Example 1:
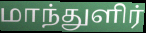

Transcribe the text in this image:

மாந்துளிர்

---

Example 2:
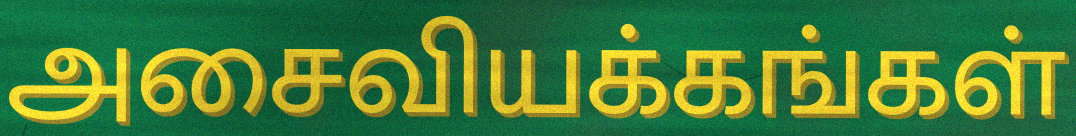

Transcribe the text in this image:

அசைவியக்கங்கள்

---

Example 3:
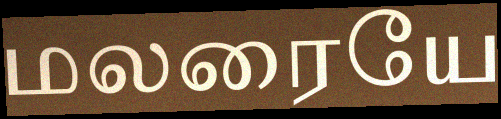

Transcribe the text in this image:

மலரையே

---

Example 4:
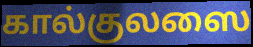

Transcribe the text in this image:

கால்குலஸை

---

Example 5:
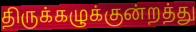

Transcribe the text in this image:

திருக்கழுக்குன்றத்து